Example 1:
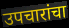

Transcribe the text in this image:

उपचारांचा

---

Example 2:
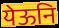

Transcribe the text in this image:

येऊनि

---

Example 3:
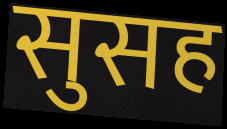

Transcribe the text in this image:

सुसह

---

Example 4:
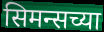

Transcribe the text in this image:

सिमन्सच्या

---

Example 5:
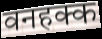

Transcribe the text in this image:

वनहक्क